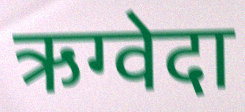
ऋग्वेदा